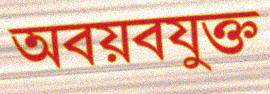
অবয়বযুক্ত